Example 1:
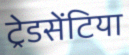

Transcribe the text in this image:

ट्रेडसेंटिया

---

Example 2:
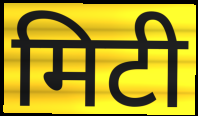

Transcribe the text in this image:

मिटी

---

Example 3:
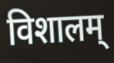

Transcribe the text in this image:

विशालम्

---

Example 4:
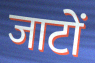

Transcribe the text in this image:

जाटों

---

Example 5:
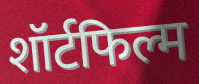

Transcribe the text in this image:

शॉर्टफिल्म